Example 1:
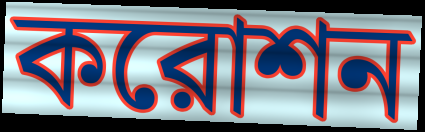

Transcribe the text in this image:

করোশন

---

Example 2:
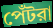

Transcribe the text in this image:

পেঁটরা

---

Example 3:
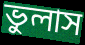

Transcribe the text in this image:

ভুলাস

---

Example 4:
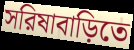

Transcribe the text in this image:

সরিষাবাড়িতে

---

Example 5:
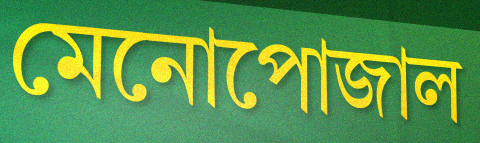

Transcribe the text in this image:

মেনোপোজাল